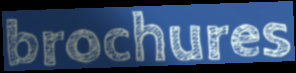
brochures